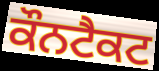
ਕੌਨਟੈਕਟ